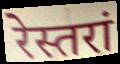
रेस्तरां